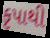
કૃપાથી